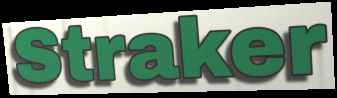
Straker